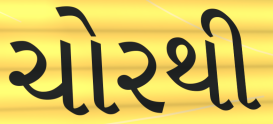
ચોરથી